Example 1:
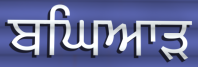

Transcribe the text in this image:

ਬਘਿਆੜ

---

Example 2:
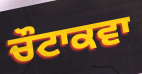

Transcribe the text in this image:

ਚੌਟਾਕਵਾ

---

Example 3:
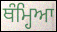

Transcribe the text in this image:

ਥੰਮ੍ਹਿਆ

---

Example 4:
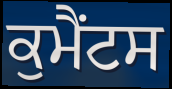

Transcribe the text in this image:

ਕੁਮੈਂਟਸ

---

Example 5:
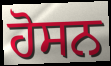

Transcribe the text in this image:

ਹੋਸਨ